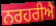
ਨਰਹਰੀਐ